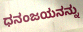
ಧನಂಜಯನನ್ನು